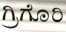
ಗ್ರಿಗೊರಿ